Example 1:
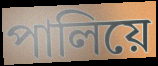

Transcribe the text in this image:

পালিয়ে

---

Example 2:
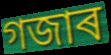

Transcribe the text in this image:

গজাৰ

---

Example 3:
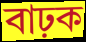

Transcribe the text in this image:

বাঢ়ক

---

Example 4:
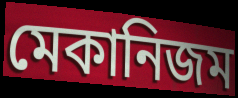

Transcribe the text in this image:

মেকানিজম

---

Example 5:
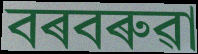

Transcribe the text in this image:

বৰবৰুৱা